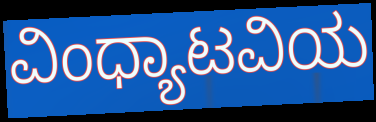
ವಿಂಧ್ಯಾಟವಿಯ